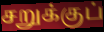
சறுக்குப்